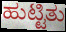
ಹುಟ್ಟಿತು